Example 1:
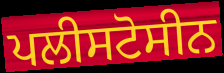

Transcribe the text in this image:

ਪਲੀਸਟੋਸੀਨ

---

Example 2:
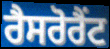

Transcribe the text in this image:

ਰੈਸਰੋਰੈਂਟ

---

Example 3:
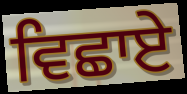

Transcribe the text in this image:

ਵਿਛਾਏ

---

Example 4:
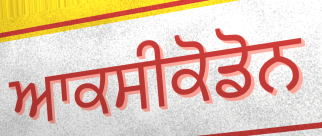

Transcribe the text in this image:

ਆਕਸੀਕੋਡੋਨ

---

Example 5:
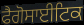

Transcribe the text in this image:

ਫੈਗੋਸਾਈਟਿਕ